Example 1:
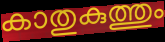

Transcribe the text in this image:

കാതുകുത്തും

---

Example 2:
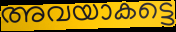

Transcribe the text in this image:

അവയാകട്ടെ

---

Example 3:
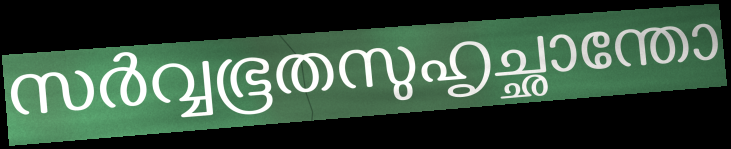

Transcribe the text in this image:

സർവ്വഭൂതസുഹൃച്ഛാന്തോ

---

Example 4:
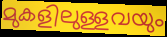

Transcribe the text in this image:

മുകളിലുള്ളവയും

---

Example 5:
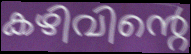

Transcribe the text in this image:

കഴിവിന്റെ